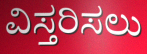
ವಿಸ್ತರಿಸಲು